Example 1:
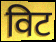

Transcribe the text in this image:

विट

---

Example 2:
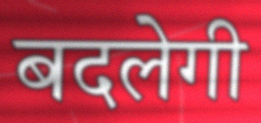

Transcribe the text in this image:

बदलेगी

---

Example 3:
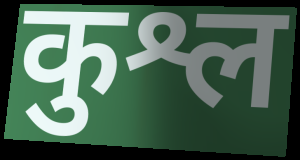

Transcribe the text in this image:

कुश्ल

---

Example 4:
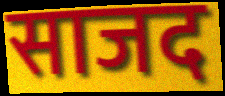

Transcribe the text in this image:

साजद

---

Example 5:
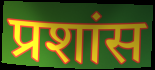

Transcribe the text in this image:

प्रशांस